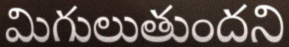
మిగులుతుందని